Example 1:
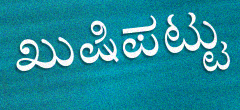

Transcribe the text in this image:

ಖುಷಿಪಟ್ಟು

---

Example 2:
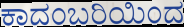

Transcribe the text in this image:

ಕಾದಂಬರಿಯಿಂದ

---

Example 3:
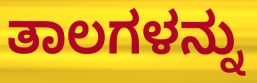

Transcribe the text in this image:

ತಾಲಗಳನ್ನು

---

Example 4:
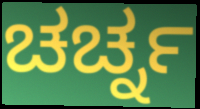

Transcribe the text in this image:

ಚರ್ಚ್ನ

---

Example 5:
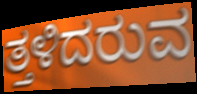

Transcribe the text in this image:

ತ್ತಳಿದರುವ